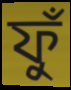
ফুঁ